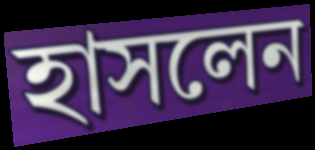
হাসলেন